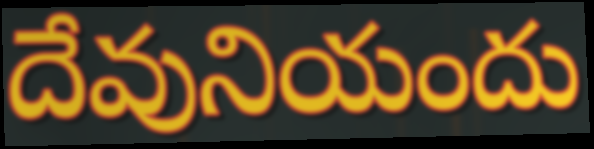
దేవునియందు